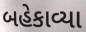
બહેકાવ્યા